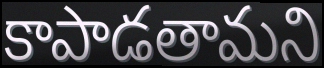
కాపాడతామని